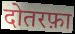
दोतरफ़ा